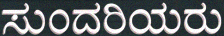
ಸುಂದರಿಯರು